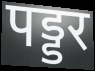
पड्डर